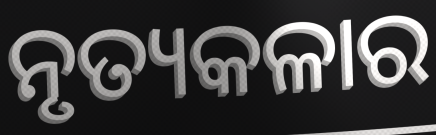
ନୃତ୍ୟକଳାର